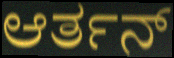
ಆರ್ತನ್